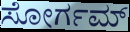
ಸೋರ್ಗಮ್